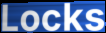
Locks